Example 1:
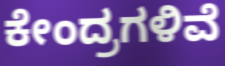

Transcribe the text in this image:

ಕೇಂದ್ರಗಳಿವೆ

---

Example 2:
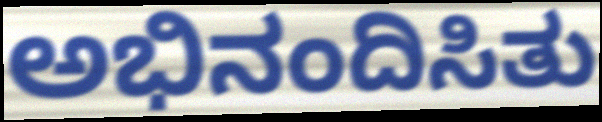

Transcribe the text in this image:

ಅಭಿನಂದಿಸಿತು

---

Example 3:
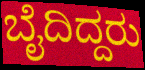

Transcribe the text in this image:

ಬೈದಿದ್ದರು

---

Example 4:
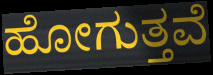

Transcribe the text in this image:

ಹೋಗುತ್ತವೆ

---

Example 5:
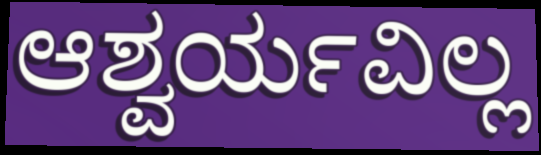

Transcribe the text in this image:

ಆಶ್ವರ್ಯವಿಲ್ಲ